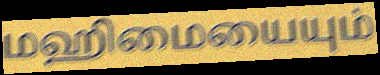
மஹிமையையும்